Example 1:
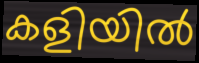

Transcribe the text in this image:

കളിയിൽ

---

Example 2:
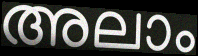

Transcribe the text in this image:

അലാം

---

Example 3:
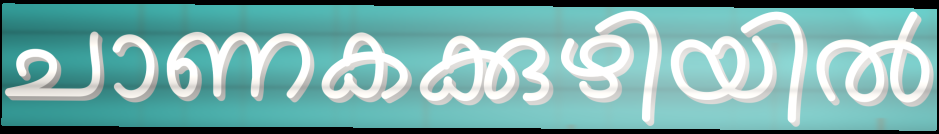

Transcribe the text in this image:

ചാണകക്കുഴിയിൽ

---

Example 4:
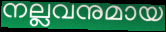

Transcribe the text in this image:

നല്ലവനുമായ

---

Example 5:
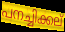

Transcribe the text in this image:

പനച്ചിക്കല്